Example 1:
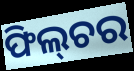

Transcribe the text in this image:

ଫିଲ୍‌ଚର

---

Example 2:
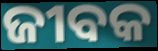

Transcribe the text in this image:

ଜୀବକ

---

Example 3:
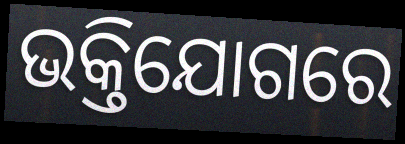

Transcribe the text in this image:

ଭକ୍ତିଯୋଗରେ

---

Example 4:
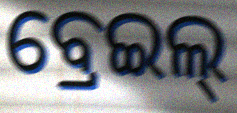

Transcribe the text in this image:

ବ୍ରେଇଲ୍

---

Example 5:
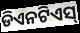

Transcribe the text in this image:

ଡିଏନଟିଏସ୍